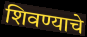
शिवण्याचे